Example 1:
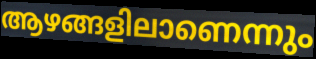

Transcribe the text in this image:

ആഴങ്ങളിലാണെന്നും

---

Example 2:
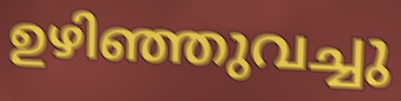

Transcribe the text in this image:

ഉഴിഞ്ഞുവച്ചു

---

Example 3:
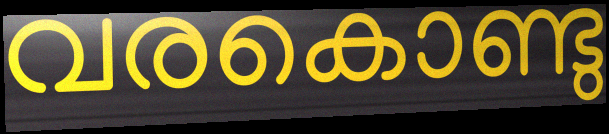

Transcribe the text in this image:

വരകൊണ്ടു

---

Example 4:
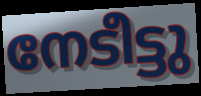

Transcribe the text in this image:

നേടീട്ടു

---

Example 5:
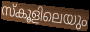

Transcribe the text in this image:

സ്കൂളിലെയും